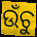
ଉଁଚୁ